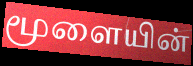
மூளையின்